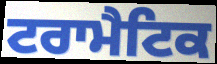
ਟਰਾਮੈਟਿਕ